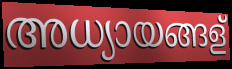
അധ്യായങ്ങള്